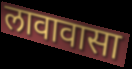
लावावासा